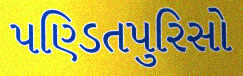
પણ્ડિતપુરિસો